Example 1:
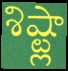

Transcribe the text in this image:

శిష్ట్లా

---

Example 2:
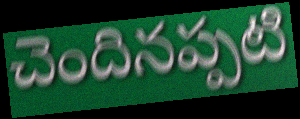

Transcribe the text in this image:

చెందినప్పటి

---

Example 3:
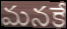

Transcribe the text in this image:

మనకే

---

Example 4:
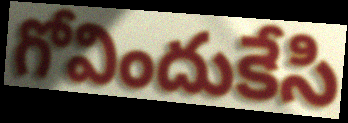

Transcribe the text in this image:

గోవిందుకేసి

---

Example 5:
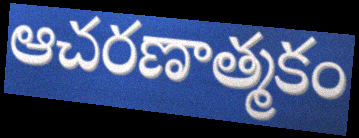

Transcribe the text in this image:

ఆచరణాత్మకం